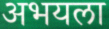
अभयला